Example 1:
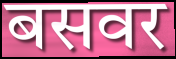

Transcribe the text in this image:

बसवर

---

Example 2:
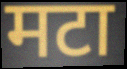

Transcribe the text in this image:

मटा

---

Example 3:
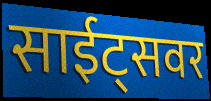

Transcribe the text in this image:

साईट्सवर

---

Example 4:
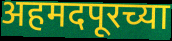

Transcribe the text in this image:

अहमदपूरच्या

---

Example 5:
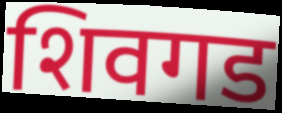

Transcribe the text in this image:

शिवगड